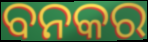
ବନକର